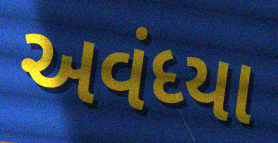
અવંધ્યા